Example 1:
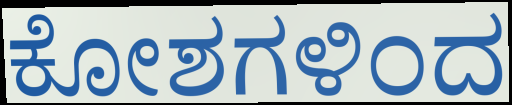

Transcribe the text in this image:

ಕೋಶಗಳಿಂದ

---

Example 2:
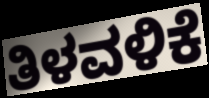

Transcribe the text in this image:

ತಿಳವಳಿಕೆ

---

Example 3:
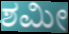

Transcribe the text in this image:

ಶಮೀ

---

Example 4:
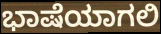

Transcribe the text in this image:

ಭಾಷೆಯಾಗಲಿ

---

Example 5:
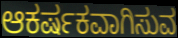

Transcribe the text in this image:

ಆಕರ್ಷಕವಾಗಿಸುವ